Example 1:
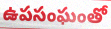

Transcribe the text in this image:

ఉపసంఘంతో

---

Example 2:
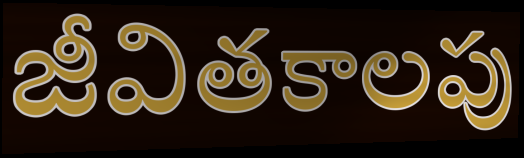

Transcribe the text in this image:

జీవితకాలపు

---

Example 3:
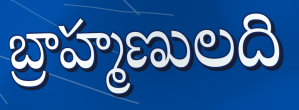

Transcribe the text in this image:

బ్రాహ్మణులది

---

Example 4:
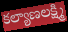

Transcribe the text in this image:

కల్యాణలక్ష్మి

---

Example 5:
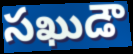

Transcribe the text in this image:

సఖుడౌ